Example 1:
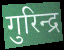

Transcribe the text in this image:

गुरिन्द्र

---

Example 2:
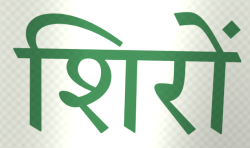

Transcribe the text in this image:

शिरों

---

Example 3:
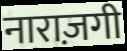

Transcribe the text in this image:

नाराज़गी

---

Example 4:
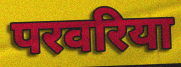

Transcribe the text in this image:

परवरिया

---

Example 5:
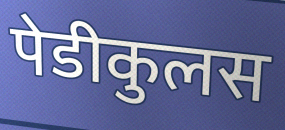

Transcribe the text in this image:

पेडीकुलस